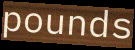
pounds